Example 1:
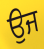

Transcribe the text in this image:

ਉਜ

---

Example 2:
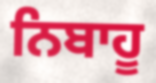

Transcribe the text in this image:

ਨਿਬਾਹੂ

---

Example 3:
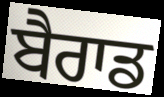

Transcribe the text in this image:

ਬੈਰਾਡ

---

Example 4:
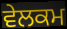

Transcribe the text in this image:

ਵੇਲਕਮ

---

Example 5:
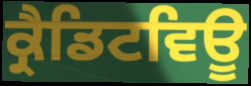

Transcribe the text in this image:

ਕ੍ਰੈਡਿਟਵਿਊ